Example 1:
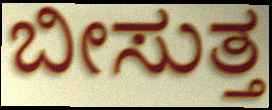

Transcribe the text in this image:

ಬೀಸುತ್ತ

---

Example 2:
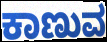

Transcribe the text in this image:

ಕಾಣುವ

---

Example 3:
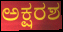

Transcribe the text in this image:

ಅಕ್ಷರಶ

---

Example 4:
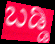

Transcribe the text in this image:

ಬಡ್ಡಿ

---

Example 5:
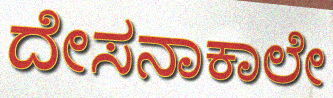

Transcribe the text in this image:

ದೇಸನಾಕಾಲೇ